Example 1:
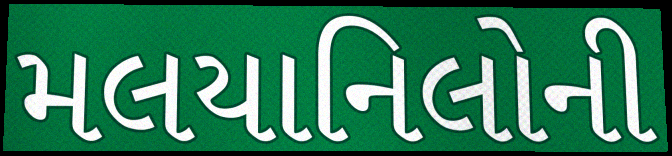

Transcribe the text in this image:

મલયાનિલોની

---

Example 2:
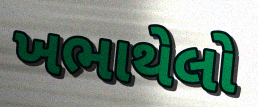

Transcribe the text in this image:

ખભાથેલો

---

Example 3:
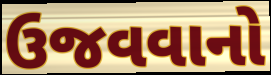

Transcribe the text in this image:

ઉજવવાનો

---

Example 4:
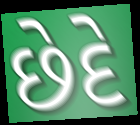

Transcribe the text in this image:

છેદે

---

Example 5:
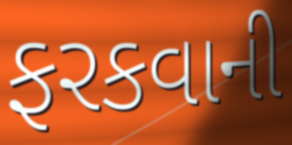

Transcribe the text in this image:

ફરકવાની